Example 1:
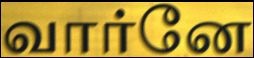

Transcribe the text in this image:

வார்னே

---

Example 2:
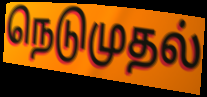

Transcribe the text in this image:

நெடுமுதல்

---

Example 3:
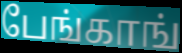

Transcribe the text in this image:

பேங்காங்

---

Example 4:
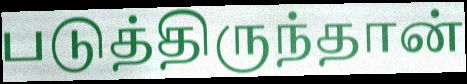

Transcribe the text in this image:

படுத்திருந்தான்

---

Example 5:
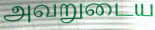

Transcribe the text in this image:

அவறுடைய